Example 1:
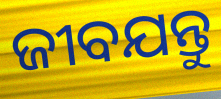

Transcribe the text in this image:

ଜୀବଯନ୍ତୁ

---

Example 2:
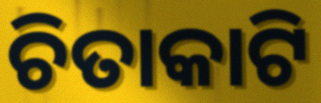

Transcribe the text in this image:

ଚିତାକାଟି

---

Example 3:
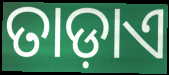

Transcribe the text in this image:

ତାଡ଼ାଏ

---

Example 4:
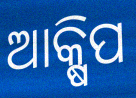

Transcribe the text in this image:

ଆକ୍ଷିପ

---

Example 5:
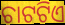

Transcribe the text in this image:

ଚାଟଟିଏ